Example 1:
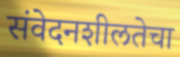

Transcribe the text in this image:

संवेदनशीलतेचा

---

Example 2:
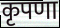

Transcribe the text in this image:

कृपणा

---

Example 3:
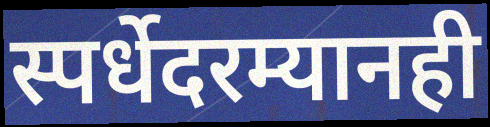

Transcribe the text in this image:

स्पर्धेदरम्यानही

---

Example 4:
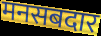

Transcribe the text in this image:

मनसबदार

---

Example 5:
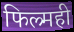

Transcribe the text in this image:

फिल्मही